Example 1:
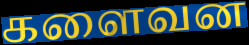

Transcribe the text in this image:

களைவன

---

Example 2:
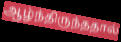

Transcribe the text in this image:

ஆழ்ந்திருந்ததால்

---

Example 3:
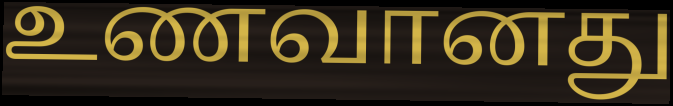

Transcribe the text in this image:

உணவானது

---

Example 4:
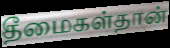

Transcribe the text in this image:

தீமைகள்தான்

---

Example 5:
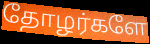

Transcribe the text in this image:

தோழர்களே